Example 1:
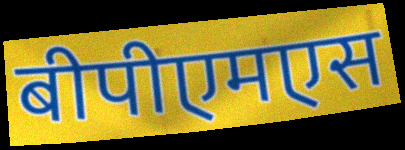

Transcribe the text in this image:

बीपीएमएस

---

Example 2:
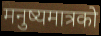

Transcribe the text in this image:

मनुष्यमात्रको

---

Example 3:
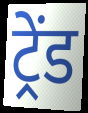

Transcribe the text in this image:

ट्रेंड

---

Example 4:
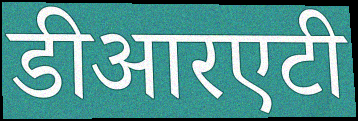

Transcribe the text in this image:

डीआरएटी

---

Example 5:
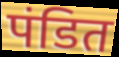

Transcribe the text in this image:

पंडित